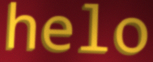
helo